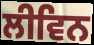
ਲੀਵਿਨ